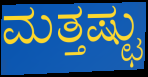
ಮತ್ತಷ್ಟು